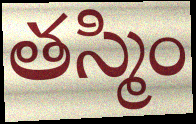
తస్మిం